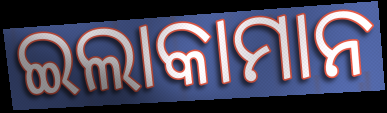
ଇଲାକାମାନ